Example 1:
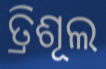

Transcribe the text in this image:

ତ୍ରିଶୂଲ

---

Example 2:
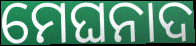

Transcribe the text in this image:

ମେଘନାଦ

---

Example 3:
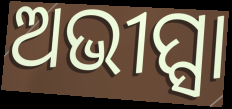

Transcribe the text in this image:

ଅଭୀପ୍ସା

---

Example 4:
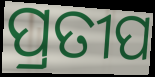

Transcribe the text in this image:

ପ୍ରତୀପ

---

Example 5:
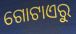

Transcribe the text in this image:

ଗୋଟାଏରୁ